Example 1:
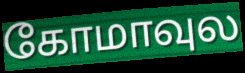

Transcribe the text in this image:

கோமாவுல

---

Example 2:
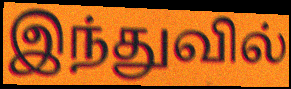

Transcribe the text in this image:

இந்துவில்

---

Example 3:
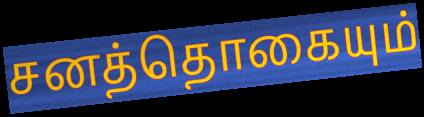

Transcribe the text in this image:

சனத்தொகையும்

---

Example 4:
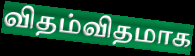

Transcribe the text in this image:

விதம்விதமாக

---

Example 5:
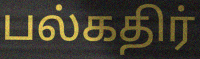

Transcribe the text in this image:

பல்கதிர்